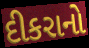
દીકરાનો